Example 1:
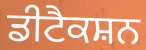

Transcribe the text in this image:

ਡੀਟੈਕਸ਼ਨ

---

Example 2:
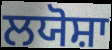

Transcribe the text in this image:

ਲਯੋਸ਼ਾ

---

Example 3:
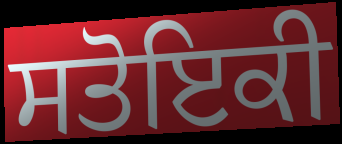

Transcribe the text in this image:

ਸਤੋਇਕੀ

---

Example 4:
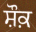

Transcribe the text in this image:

ਸ਼ੌਕ਼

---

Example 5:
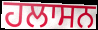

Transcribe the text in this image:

ਹਲਾਸਨ